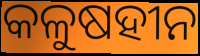
କଳୁଷହୀନ